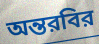
অন্তরবির